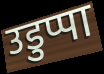
उडुप्पा